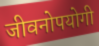
जीवनोपयोगी